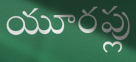
యూరప్లు